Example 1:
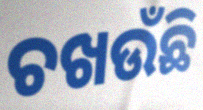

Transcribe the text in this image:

ଚଖଉଁଛି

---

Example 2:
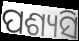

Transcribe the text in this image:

ପଶ୍ୟସି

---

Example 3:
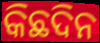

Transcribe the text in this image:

କିଛଦିନ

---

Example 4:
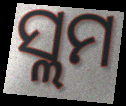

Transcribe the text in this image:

ସ୍ଲମ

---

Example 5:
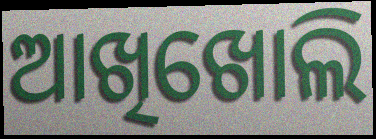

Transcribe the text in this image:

ଆଖିଖୋଲି